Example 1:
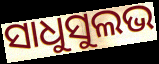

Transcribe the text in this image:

ସାଧୁସୁଲଭ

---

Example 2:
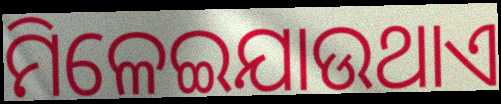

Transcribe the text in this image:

ମିଳେଇଯାଉଥାଏ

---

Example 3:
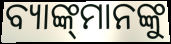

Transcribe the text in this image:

ବ୍ୟାଙ୍କ୍‌ମାନଙ୍କୁ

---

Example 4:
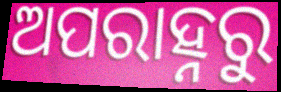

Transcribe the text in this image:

ଅପରାହ୍ନରୁ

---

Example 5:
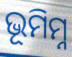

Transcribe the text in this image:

ଭୂମିମ୍ନ